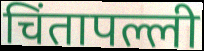
चिंतापल्ली